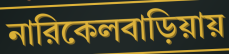
নারিকেলবাড়িয়ায়